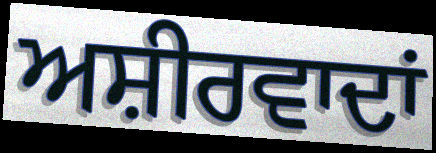
ਅਸ਼ੀਰਵਾਦਾਂ